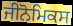
ਜੀਨੋਮਿਕਸ